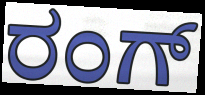
ರಂಗ್